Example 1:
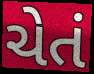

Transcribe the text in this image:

ચેતં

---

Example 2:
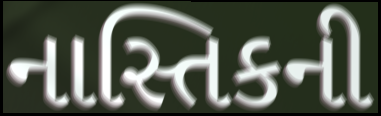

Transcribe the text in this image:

નાસ્તિકની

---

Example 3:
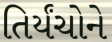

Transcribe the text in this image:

તિર્યંચોને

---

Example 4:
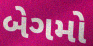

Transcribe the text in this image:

બેગમો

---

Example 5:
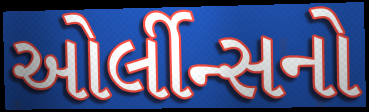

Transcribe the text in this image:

ઓર્લીન્સનો